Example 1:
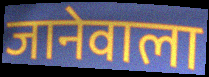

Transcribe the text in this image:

जानेवाला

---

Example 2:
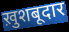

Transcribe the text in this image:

ख़ुशबूदार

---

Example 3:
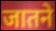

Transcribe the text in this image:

जातने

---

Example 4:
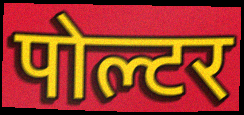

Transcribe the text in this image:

पोल्टर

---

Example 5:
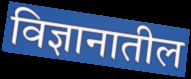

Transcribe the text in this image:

विज्ञानातील